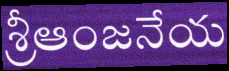
శ్రీఆంజనేయ